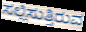
ಸಲ್ಲಿಸುತ್ತಿರುವ